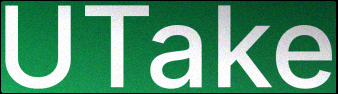
UTake